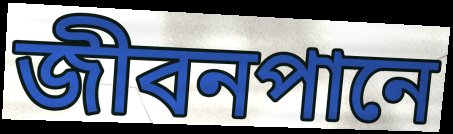
জীবনপানে